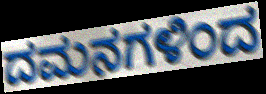
ದಮನಗಳಿಂದ